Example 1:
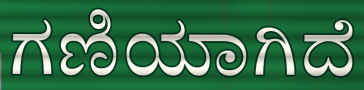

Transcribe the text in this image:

ಗಣಿಯಾಗಿದೆ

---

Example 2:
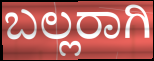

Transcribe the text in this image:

ಬಲ್ಲರಾಗಿ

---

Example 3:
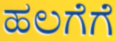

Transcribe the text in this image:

ಹಲಗೆಗೆ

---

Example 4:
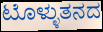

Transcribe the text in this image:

ಟೊಳ್ಳುತನದ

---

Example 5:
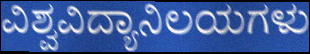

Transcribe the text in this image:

ವಿಶ್ವವಿದ್ಯಾನಿಲಯಗಳು